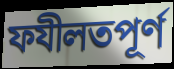
ফযীলতপূর্ণ